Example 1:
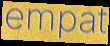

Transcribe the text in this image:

empat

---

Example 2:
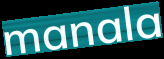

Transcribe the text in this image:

manala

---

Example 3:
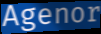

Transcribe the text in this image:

Agenor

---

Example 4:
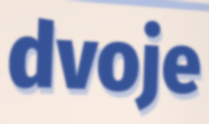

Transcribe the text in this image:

dvoje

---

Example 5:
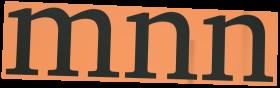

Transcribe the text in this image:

mnn